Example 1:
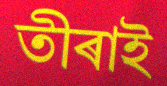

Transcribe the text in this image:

তীৰাই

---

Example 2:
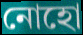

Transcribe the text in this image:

নোহো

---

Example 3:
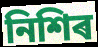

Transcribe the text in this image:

নিশিৰ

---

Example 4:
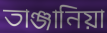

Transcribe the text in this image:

তাঞ্জানিয়া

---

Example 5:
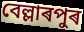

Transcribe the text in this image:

বেল্লাৰপুৰ